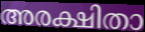
അരക്ഷിതാ